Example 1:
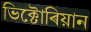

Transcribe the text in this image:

ভিক্টোৰিয়ান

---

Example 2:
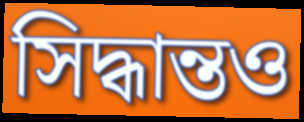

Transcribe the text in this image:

সিদ্ধান্তও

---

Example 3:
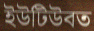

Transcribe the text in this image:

ইউটিউবত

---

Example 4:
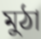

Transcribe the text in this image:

মুঠা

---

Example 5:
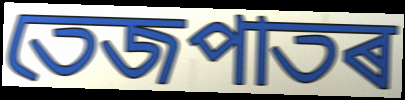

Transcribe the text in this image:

তেজপাতৰ